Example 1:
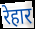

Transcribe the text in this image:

रेहार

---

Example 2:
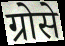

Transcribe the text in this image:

ग्रोसे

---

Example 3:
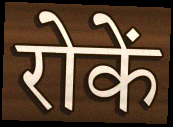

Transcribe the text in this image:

रोकें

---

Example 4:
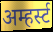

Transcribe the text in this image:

अम्हर्स्ट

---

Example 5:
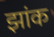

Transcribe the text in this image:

झांक